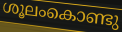
ശൂലംകൊണ്ടു